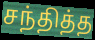
சந்தித்த